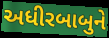
અધીરબાબુને